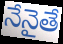
నేనైతే